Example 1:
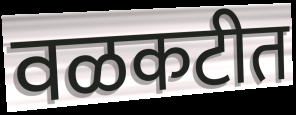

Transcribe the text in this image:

वळकटीत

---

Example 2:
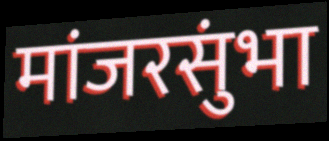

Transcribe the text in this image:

मांजरसुंभा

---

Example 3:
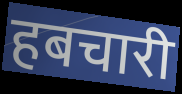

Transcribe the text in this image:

हबचारी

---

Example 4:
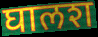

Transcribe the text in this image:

घालश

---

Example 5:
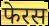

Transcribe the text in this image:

फेरस